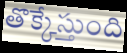
తొక్కేస్తుంది